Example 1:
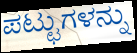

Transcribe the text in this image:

ಪಟ್ಟುಗಳನ್ನು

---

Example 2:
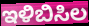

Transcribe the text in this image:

ಇಳಿಬಿಸಿಲ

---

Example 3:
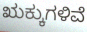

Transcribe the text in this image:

ಋಕ್ಕುಗಳಿವೆ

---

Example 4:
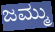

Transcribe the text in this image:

ಜಮ್ಮು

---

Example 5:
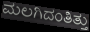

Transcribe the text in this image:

ಮಲಗಿದಂತಿತ್ತು